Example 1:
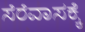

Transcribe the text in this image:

ಸೆರೆವಾಸಕ್ಕೆ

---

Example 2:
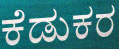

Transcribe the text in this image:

ಕೆಡುಕರ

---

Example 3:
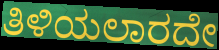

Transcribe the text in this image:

ತಿಳಿಯಲಾರದೇ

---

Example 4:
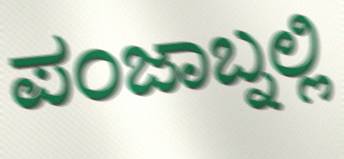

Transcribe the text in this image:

ಪಂಜಾಬ್ನಲ್ಲಿ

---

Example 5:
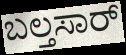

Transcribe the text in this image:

ಬಲ್ತಸಾರ್